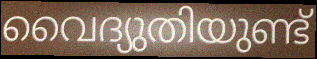
വൈദ്യുതിയുണ്ട്